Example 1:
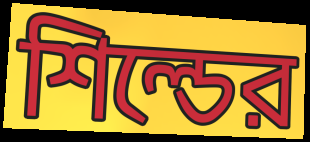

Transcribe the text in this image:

শিল্ডের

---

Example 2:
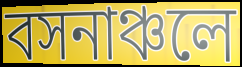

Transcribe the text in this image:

বসনাঞ্চলে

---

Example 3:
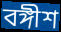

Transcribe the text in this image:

বঙ্গীশ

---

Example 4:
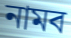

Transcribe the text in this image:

নামব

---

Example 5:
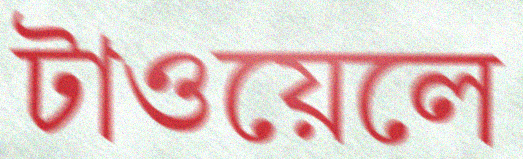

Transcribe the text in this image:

টাওয়েলে